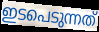
ഇടപെടുന്നത്